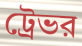
ট্রেভর